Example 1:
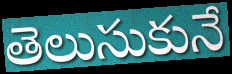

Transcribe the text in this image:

తెలుసుకునే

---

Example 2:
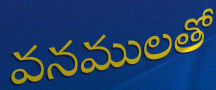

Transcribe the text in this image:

వనములతో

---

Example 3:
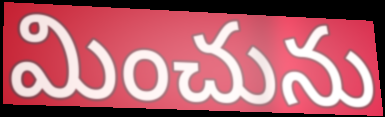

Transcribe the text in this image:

మించును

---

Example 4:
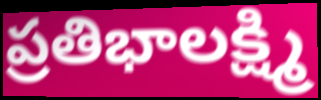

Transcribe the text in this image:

ప్రతిభాలక్ష్మి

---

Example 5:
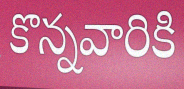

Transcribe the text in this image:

కొన్నవారికి